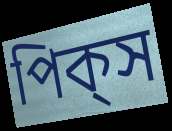
পিক্‌স